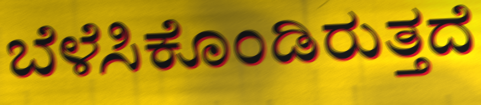
ಬೆಳೆಸಿಕೊಂಡಿರುತ್ತದೆ